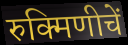
रुक्मिणीचें